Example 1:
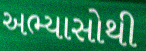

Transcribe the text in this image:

અભ્યાસોથી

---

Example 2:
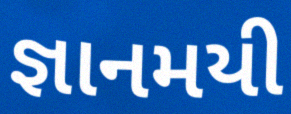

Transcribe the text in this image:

જ્ઞાનમયી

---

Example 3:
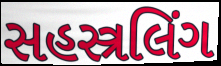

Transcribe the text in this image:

સહસ્ત્રલિંગ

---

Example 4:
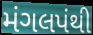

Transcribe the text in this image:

મંગલપંથી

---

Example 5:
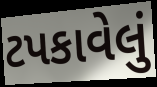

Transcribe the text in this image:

ટપકાવેલું